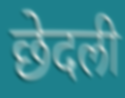
छेदली